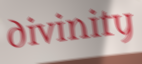
divinity